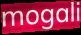
mogali